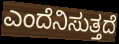
ಎಂದೆನಿಸುತ್ತದೆ